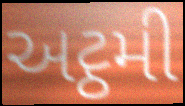
અટ્ઠમી